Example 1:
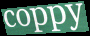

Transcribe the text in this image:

coppy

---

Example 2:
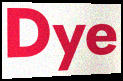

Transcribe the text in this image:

Dye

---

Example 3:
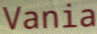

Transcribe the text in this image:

Vania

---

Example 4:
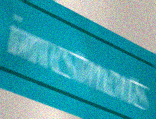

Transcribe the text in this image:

investments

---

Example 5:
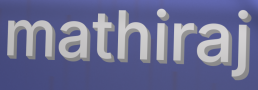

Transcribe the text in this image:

mathiraj